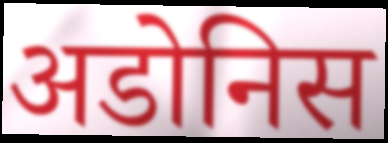
अडोनिस